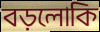
বড়লোকি